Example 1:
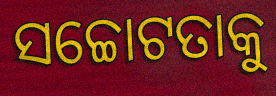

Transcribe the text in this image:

ସଚ୍ଚୋଟତାକୁ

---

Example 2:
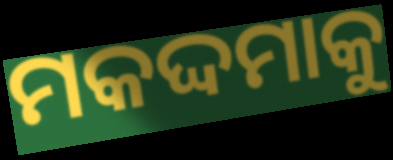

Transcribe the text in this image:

ମକଦ୍ଦମାକୁ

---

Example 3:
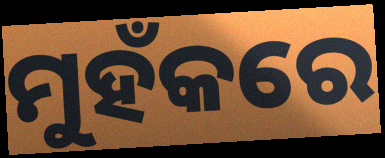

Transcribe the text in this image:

ମୁହଁକରେ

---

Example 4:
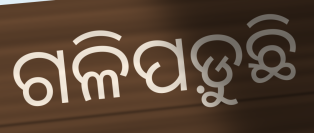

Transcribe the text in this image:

ଗଳିପଡ଼ୁଛି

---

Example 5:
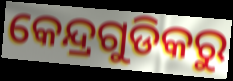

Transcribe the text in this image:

କେନ୍ଦ୍ରଗୁଡିକରୁ